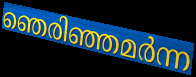
ഞെരിഞ്ഞമർന്ന